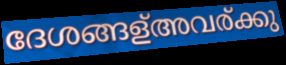
ദേശങ്ങള്അവര്ക്കു